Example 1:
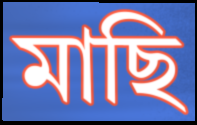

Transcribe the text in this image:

মাছি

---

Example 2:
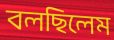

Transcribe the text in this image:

বলছিলেম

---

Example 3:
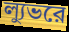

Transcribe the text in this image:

ল্যুভরে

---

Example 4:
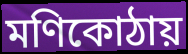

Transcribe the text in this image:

মণিকোঠায়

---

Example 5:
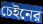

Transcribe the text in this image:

চেইনের